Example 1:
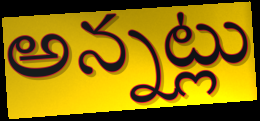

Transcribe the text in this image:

అన్నట్లు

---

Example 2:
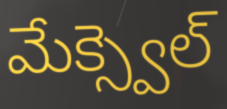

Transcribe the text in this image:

మేక్స్వెల్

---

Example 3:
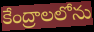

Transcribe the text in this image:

కేంద్రాలలోను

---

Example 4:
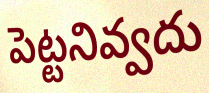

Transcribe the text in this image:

పెట్టనివ్వదు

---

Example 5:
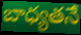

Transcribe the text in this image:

బాధ్యతనే